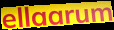
ellaarum